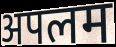
अपलम